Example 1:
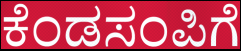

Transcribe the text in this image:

ಕೆಂಡಸಂಪಿಗೆ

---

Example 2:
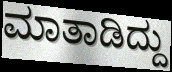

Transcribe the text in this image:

ಮಾತಾಡಿದ್ದು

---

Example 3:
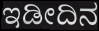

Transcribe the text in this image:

ಇಡೀದಿನ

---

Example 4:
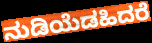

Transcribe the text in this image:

ನುಡಿಯೆಡಹಿದರೆ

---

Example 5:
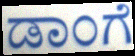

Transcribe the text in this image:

ಡಾಂಗೆ